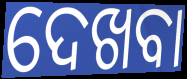
ଦେଖବା